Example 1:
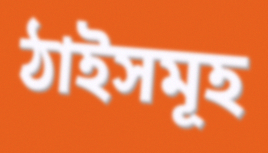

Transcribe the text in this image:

ঠাইসমূহ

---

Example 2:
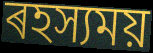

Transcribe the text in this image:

ৰহস্যময়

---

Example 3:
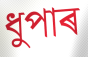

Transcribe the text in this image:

ধুপাৰ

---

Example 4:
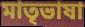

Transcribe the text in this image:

মাতৃভাষা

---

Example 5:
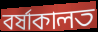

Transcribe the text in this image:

বৰ্ষাকালত